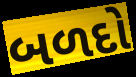
બળદો